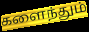
களைந்தும்